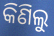
କିଣିଲୁ